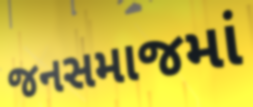
જનસમાજમાં